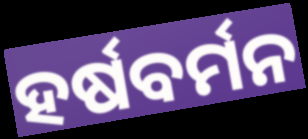
ହର୍ଷବର୍ମନ